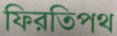
ফিরতিপথ